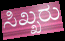
ಸಿಖ್ಖರು